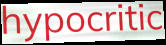
hypocritic